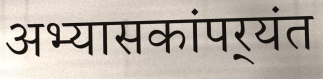
अभ्यासकांपर्यंत